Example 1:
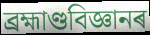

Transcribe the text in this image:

ব্ৰহ্মাণ্ডবিজ্ঞানৰ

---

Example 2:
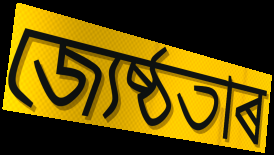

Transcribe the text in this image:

জ্যেষ্ঠতাৰ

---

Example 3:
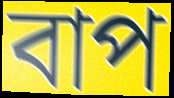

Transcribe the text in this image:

বাপ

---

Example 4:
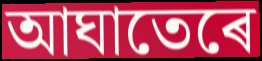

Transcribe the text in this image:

আঘাতেৰে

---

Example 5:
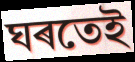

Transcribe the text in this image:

ঘৰতেই